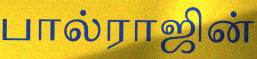
பால்ராஜின்